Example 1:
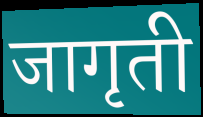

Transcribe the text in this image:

जागृती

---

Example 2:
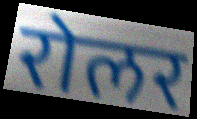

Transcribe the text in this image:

रोलर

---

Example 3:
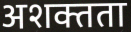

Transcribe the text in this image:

अशक्‍तता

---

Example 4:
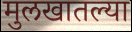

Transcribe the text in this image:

मुलखातल्या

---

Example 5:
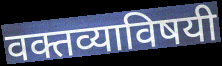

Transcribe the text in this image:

वक्तव्याविषयी